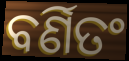
ବର୍ଣିତଂ